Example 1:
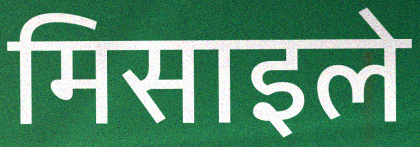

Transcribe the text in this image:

मिसाइले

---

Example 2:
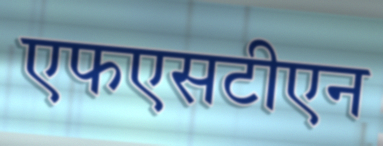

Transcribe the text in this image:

एफएसटीएन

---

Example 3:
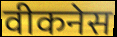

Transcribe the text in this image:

वीकनेस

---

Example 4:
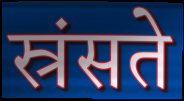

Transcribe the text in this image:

स्रंसते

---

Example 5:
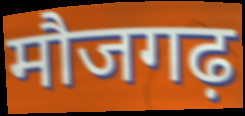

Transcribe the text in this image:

मौजगढ़